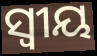
ସ୍ବୀୟ